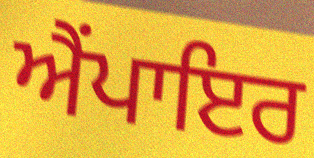
ਐਂਪਾਇਰ